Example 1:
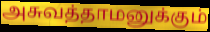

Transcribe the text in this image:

அசுவத்தாமனுக்கும்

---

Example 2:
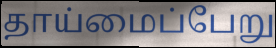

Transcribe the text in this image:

தாய்மைப்பேறு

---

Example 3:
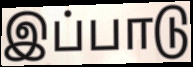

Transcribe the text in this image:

இப்பாடு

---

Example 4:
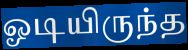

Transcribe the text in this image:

ஓடியிருந்த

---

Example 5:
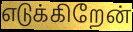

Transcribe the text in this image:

எடுக்கிறேன்